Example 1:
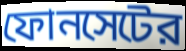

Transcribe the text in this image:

ফোনসেটের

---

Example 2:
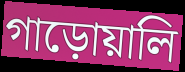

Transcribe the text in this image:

গাড়োয়ালি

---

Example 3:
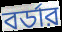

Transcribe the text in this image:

বর্ডার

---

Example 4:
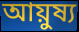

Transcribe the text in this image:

আয়ুষ্য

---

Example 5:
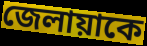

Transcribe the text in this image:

জেলায়াকে